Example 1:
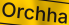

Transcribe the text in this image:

Orchha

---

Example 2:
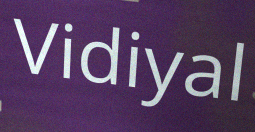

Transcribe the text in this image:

Vidiyal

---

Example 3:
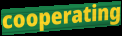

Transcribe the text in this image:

cooperating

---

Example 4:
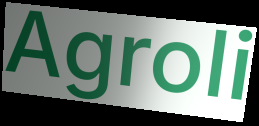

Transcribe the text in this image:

Agroli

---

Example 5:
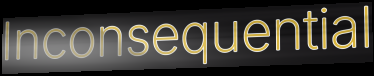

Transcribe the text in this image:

Inconsequential